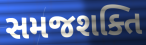
સમજશક્તિ